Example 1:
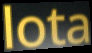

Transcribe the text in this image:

lota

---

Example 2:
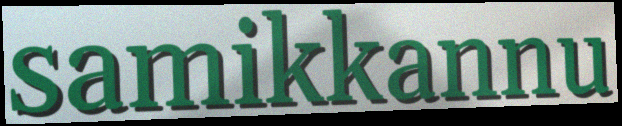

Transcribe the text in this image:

samikkannu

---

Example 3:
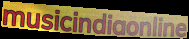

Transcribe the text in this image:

musicindiaonline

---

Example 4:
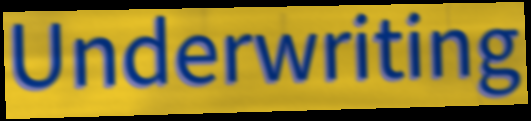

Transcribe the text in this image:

Underwriting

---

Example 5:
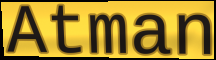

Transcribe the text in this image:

Atman